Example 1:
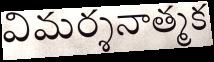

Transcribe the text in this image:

విమర్శనాత్మక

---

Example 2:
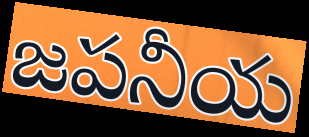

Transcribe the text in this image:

జపనీయ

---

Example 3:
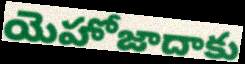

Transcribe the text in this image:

యెహోజాదాకు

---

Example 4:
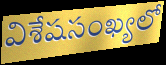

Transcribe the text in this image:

విశేషసంఖ్యలో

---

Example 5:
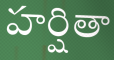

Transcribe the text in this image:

హర్షితా